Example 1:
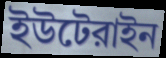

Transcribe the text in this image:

ইউটেরাইন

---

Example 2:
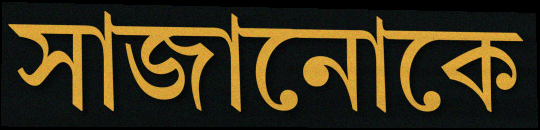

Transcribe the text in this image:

সাজানোকে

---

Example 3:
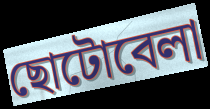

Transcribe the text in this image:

ছোটোবেলা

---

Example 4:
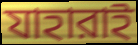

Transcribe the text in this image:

যাহারাই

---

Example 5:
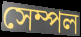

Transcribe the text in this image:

সেম্পল